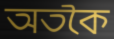
অতকৈ